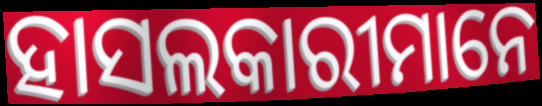
ହାସଲକାରୀମାନେ